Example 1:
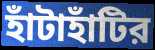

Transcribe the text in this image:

হাঁটাহাঁটির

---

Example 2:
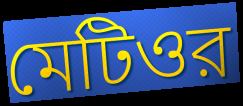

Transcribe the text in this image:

মেটিওর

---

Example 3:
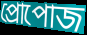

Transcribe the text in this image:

প্রোপোজ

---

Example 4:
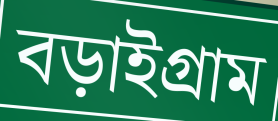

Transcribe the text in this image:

বড়াইগ্রাম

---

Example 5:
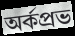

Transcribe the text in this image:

অর্কপ্রভ